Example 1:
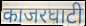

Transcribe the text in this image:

काजरघाटी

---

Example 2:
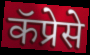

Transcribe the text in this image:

कॅप्रेसे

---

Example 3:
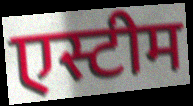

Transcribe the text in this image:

एस्टीम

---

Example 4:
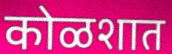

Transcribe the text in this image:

कोळशात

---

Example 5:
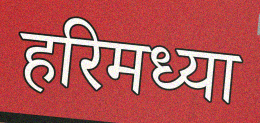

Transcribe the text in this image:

हरिमध्या